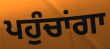
ਪਹੁੰਚਾਂਗਾ